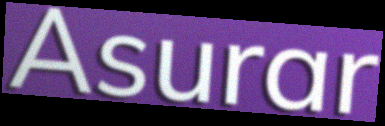
Asurar